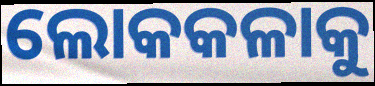
ଲୋକକଳାକୁ